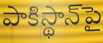
పాకిస్థాన్‌పై